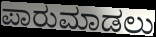
ಪಾರುಮಾಡಲು